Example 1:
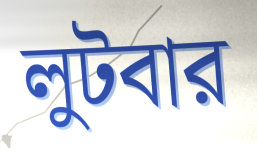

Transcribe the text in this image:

লুটবার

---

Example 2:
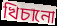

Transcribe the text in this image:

খিচানো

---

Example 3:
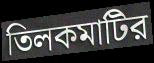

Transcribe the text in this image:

তিলকমাটির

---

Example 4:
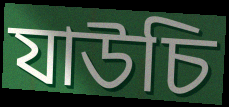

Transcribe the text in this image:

যাউচি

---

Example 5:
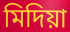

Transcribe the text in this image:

মিদিয়া